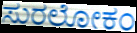
ಸುರಲೋಕಂ